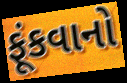
ફૂંકવાનો